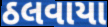
ઠલવાયા